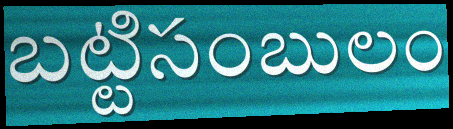
బట్టిసంబులం